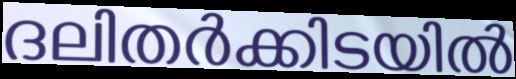
ദലിതർക്കിടയിൽ